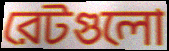
রেটগুলো